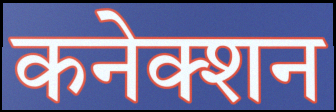
कनेक्‍शन